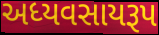
અધ્યવસાયરૂપ